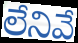
లేనివే